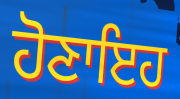
ਹੋਣਾਇਹ